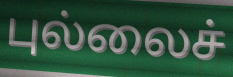
புல்லைச்